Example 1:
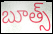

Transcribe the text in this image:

బూత్స్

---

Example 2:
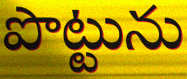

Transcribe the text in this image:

పొట్టును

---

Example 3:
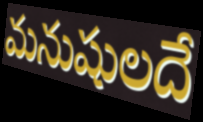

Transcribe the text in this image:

మనుషులదే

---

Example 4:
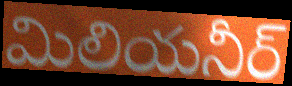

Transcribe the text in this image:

మిలియనీర్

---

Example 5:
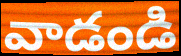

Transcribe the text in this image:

వాడండి